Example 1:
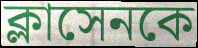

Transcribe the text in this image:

ক্লাসেনকে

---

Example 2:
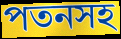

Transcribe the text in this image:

পতনসহ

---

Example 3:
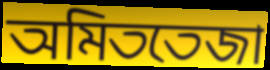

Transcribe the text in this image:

অমিততেজা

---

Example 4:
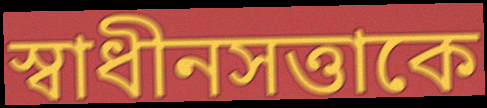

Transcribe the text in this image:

স্বাধীনসত্তাকে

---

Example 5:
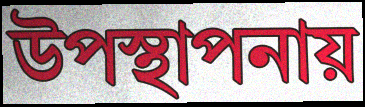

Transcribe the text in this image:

উপস্থাপনায়